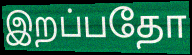
இறப்பதோ